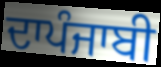
ਦਾਪੰਜਾਬੀ